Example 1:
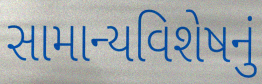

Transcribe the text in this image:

સામાન્યવિશેષનું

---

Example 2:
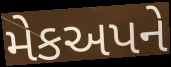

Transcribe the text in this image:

મેકઅપને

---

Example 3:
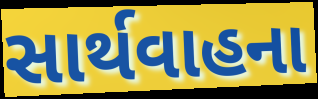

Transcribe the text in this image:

સાર્થવાહના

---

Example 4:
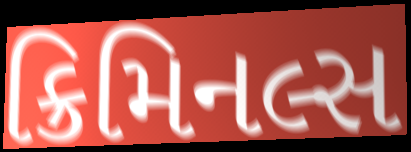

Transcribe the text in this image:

ક્રિમિનલ્સ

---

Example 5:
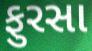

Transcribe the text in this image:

ફુરસા